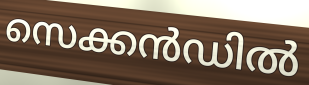
സെക്കൻഡിൽ